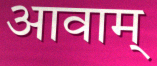
आवाम्